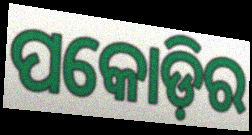
ପକୋଡ଼ିର